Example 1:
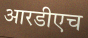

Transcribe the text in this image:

आरडीएच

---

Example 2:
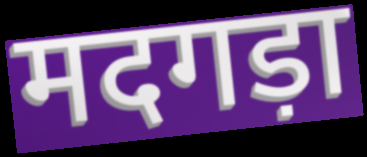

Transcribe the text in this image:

मदगड़ा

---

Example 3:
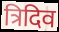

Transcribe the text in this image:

त्रिदिव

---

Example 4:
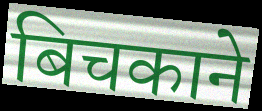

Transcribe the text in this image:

बिचकाने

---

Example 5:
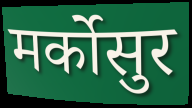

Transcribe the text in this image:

मर्कोसुर